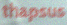
thapsus